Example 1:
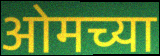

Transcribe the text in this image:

ओमच्या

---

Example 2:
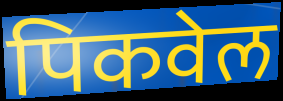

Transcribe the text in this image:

पिकवेल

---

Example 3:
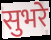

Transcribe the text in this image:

सुभरे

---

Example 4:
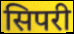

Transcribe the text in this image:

सिपरी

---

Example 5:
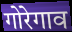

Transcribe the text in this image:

गोरेगाव